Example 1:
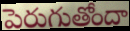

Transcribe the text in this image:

పెరుగుతోందా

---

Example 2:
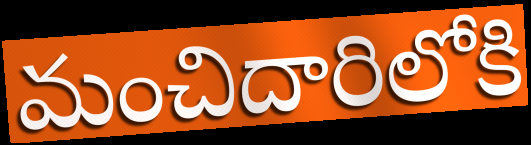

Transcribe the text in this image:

మంచిదారిలోకి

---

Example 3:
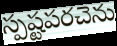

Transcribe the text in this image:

స్పష్టపరచెను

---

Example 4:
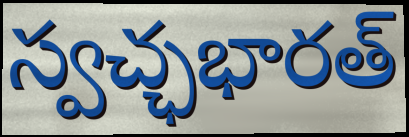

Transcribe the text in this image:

స్వచ్ఛభారత్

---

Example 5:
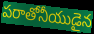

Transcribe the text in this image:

పరాతోనీయుడైన